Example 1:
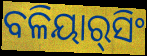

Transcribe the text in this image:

ବଳିୟାର୍‌ସିଂ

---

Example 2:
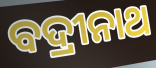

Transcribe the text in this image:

ବଦ୍ରୀନାଥ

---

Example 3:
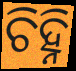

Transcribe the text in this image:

ଚିହ୍ନି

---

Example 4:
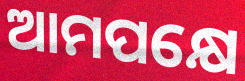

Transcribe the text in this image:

ଆମପକ୍ଷେ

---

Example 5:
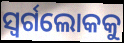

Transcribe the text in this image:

ସ୍ବର୍ଗଲୋକକୁ